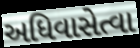
અધિવાસેત્વા